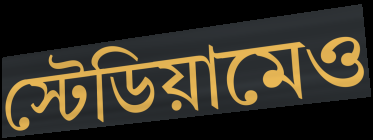
স্টেডিয়ামেও